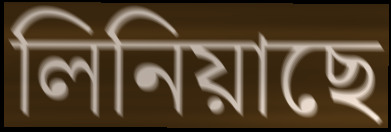
লিনিয়াছে